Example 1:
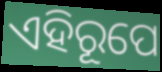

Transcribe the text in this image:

ଏହିରୂପେ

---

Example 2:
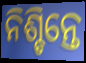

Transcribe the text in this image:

ନିଶ୍ଚିନ୍ତେ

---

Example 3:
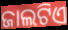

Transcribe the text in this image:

ଜାଲଟିଏ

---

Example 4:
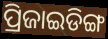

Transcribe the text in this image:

ପ୍ରିଜାଇଡିଙ୍ଗ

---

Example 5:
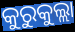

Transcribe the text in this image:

କୁରୁକୁଲ୍ଲା